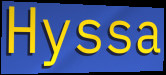
Hyssa